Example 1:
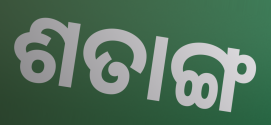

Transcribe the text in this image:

ଶତାଙ୍ଗ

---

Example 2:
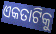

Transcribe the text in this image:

ଏକତାଟିକୁ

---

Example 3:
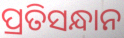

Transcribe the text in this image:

ପ୍ରତିସନ୍ଧାନ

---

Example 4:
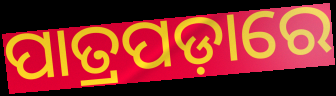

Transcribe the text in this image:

ପାତ୍ରପଡ଼ାରେ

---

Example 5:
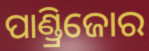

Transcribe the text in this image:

ପାଣ୍ଡ୍ରିଜୋର